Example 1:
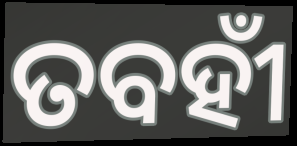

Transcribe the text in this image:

ତବହୀଁ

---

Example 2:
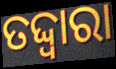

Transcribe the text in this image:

ତଦ୍ଦ୍ଵାରା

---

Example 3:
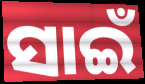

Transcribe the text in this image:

ସାଇଁ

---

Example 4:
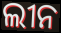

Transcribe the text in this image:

ଲୀନ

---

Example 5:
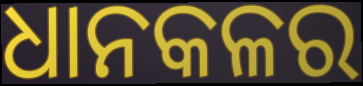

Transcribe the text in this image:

ଧାନକଳର